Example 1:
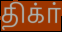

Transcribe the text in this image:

திக்ர்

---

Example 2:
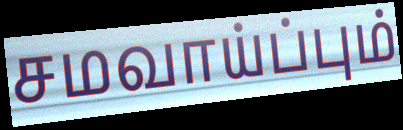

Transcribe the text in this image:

சமவாய்ப்பும்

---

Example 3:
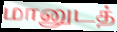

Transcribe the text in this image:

மானுடத்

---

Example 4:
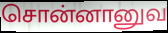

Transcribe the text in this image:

சொன்னானுவ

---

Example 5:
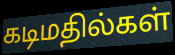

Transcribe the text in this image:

கடிமதில்கள்